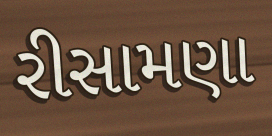
રીસામણા